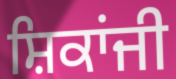
ਸ਼ਿਕਾਂਜੀ